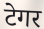
टेगर